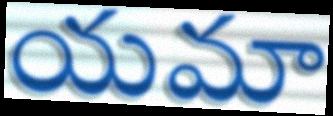
యమా